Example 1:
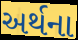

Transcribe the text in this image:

અર્થના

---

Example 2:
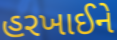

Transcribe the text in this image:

હરખાઈને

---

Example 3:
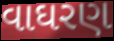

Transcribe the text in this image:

વાઘરણ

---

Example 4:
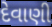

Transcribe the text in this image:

દેવાણી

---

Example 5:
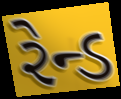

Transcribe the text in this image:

રેન્ડ